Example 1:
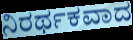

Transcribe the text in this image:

ನಿರರ್ಥಕವಾದ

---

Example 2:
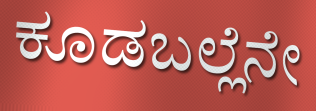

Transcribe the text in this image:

ಕೂಡಬಲ್ಲೆನೇ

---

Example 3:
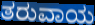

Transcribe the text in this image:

ತರುವಾಯ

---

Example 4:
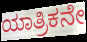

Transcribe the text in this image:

ಯಾತ್ರಿಕನೇ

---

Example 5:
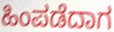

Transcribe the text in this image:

ಹಿಂಪಡೆದಾಗ